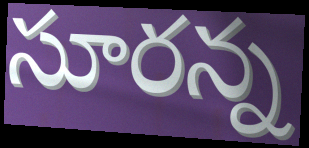
సూరన్న